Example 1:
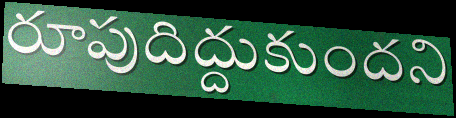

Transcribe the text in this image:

రూపుదిద్దుకుందని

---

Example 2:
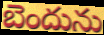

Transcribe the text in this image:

బెందును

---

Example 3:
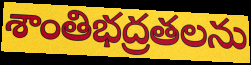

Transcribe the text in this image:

శాంతిభద్రతలను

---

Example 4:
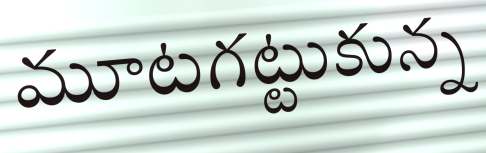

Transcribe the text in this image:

మూటగట్టుకున్న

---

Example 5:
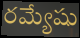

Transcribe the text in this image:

రమ్యేషు